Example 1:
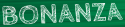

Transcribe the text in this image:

BONANZA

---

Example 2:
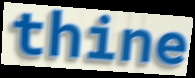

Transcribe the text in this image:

thine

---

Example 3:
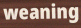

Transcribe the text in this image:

weaning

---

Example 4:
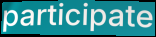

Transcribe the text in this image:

participate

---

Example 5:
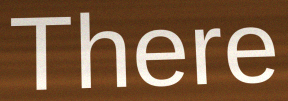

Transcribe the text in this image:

There